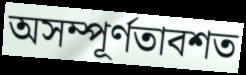
অসম্পূর্ণতাবশত